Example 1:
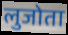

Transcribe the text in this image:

लुजोता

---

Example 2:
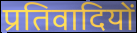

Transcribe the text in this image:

प्रतिवादियों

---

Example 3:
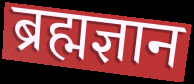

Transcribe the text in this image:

ब्रह्मज्ञान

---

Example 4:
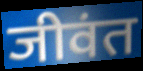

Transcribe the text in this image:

जीवंत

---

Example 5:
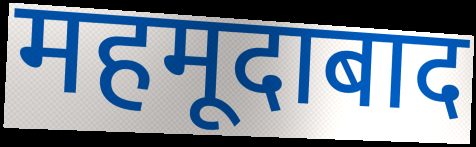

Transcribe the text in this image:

महमूदाबाद